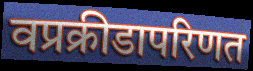
वप्रक्रीडापरिणत